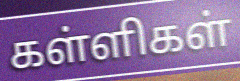
கள்ளிகள்